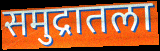
समुद्रातला